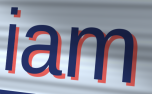
iam